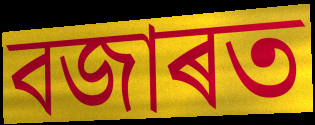
বজাৰত